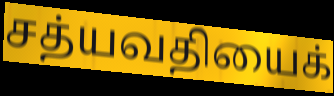
சத்யவதியைக்